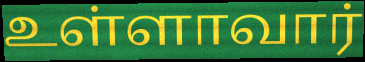
உள்ளாவார்